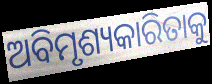
ଅବିମୃଶ୍ୟକାରିତାକୁ